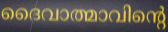
ദൈവാത്മാവിന്റെ